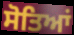
ਸੋਤਿਆਂ